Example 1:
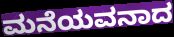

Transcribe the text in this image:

ಮನೆಯವನಾದ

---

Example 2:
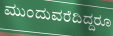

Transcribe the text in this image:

ಮುಂದುವರೆದಿದ್ದರೂ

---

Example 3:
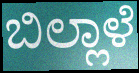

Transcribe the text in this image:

ಬಿಲ್ಲಾಳೆ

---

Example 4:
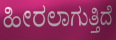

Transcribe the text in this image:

ಹೀರಲಾಗುತ್ತಿದೆ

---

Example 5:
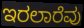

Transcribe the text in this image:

ಇರಲಾರೆವು